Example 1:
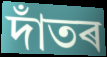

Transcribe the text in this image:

দাঁতৰ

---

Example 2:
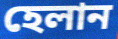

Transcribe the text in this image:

হেলান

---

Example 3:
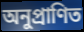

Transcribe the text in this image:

অনুপ্ৰাণিত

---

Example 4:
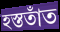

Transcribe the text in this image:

হস্ততাঁত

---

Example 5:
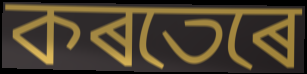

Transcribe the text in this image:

কৰতেৰে